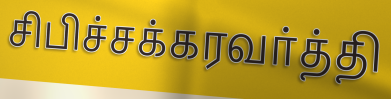
சிபிச்சக்கரவர்த்தி